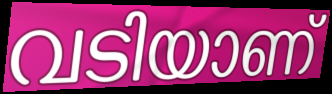
വടിയാണ്